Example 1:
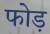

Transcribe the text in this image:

फोड़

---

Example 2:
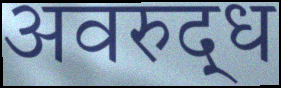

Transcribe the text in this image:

अवरुद्ध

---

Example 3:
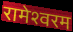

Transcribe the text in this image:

रामेश्वरम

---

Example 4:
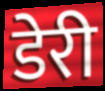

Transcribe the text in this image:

डेरी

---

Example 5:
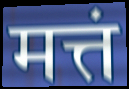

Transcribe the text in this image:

मत्तं